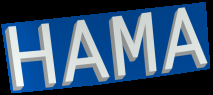
HAMA